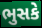
ભુસકે